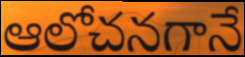
ఆలోచనగానే